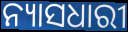
ନ୍ୟାସଧାରୀ